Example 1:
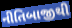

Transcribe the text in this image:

નીતિબાજીથી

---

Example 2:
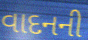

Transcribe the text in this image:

વાદનની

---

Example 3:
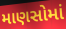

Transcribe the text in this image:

માણસોમાં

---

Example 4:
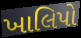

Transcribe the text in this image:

ખાલિપો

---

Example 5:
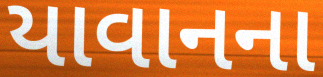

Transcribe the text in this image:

યાવાનના